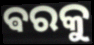
ଵରକୁ